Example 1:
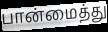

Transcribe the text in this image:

பான்மைத்து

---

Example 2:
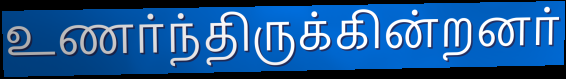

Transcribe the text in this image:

உணர்ந்திருக்கின்றனர்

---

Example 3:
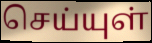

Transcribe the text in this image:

செய்யுள்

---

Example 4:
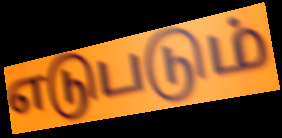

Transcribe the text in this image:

எடுபடும்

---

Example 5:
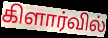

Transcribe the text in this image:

கிளார்வில்